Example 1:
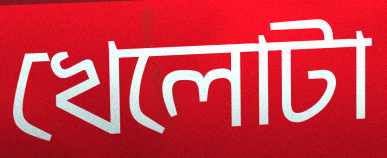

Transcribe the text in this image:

খেলোটা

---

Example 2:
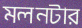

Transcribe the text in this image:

মলনটার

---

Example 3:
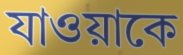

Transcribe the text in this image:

যাওয়াকে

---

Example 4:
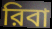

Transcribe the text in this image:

রিবা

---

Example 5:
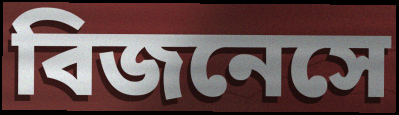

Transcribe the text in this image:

বিজনেসে